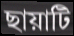
ছায়াটি